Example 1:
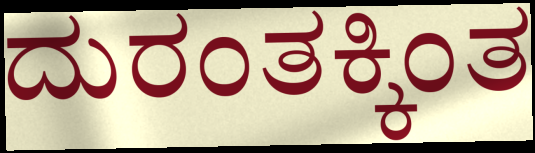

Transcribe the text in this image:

ದುರಂತಕ್ಕಿಂತ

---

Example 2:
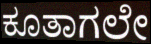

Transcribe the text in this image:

ಕೂತಾಗಲೇ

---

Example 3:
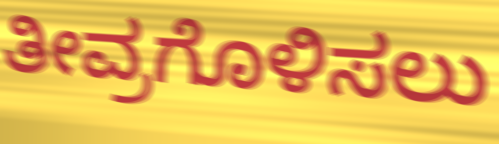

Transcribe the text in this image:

ತೀವ್ರಗೊಳಿಸಲು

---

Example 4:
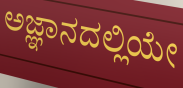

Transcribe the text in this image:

ಅಜ್ಞಾನದಲ್ಲಿಯೇ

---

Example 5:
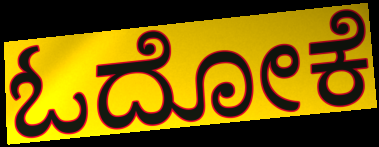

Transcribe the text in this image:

ಓದೋಕೆ